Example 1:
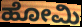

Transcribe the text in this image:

ಹೋಮಿ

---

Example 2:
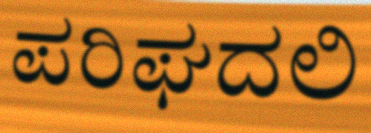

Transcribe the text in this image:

ಪರಿಘದಲಿ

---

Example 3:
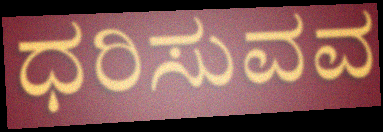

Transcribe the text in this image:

ಧರಿಸುವವ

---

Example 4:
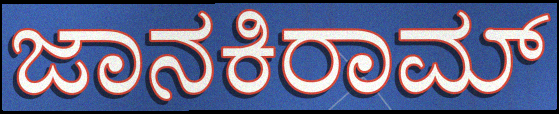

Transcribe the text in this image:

ಜಾನಕಿರಾಮ್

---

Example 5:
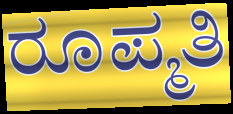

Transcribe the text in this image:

ರೂಪ್ಮತಿ